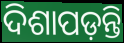
ଦିଶାପଡ଼ନ୍ତି